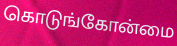
கொடுங்கோன்மை